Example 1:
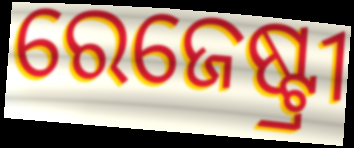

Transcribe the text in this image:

ରେଜେଷ୍ଟ୍ରୀ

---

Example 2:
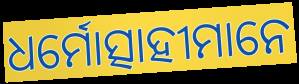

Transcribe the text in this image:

ଧର୍ମୋତ୍ସାହୀମାନେ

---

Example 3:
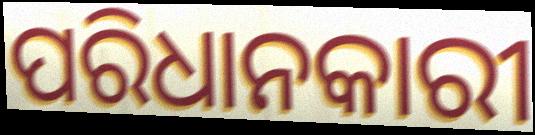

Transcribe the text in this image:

ପରିଧାନକାରୀ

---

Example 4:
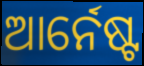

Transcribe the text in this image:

ଆର୍ନେଷ୍ଟ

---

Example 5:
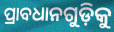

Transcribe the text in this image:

ପ୍ରାବଧାନଗୁଡ଼ିକୁ